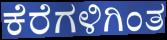
ಕೆರೆಗಳಿಗಿಂತ